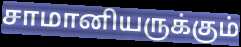
சாமானியருக்கும்